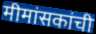
मीमांसकांची